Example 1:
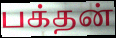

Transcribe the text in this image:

பக்தன்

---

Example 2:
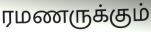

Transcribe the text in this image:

ரமணருக்கும்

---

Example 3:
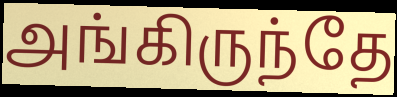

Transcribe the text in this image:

அங்கிருந்தே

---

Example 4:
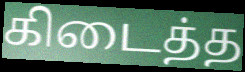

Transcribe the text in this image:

கிடைத்த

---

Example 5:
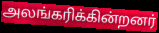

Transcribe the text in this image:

அலங்கரிக்கின்றனர்